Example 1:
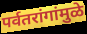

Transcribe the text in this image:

पर्वतरांगांमुळे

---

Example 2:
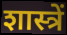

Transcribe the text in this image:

शास्त्रें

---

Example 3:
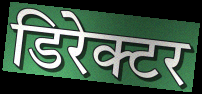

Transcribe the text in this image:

डिरेक्टर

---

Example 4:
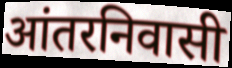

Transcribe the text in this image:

आंतरनिवासी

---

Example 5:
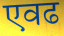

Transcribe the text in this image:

एवढ